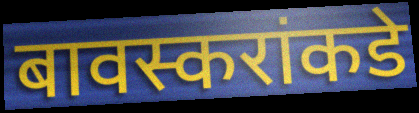
बावस्करांकडे